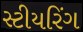
સ્ટીયરિંગ